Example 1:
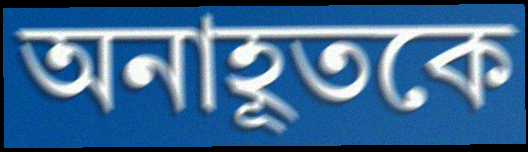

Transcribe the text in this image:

অনাহূতকে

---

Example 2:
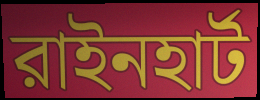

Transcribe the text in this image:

রাইনহার্ট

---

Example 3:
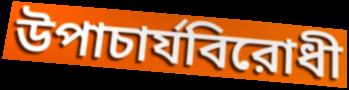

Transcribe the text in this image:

উপাচার্যবিরোধী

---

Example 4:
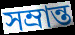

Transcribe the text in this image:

সম্রান্ত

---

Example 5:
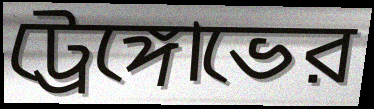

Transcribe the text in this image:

ট্রেঙ্গোভের